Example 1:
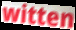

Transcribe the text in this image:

witten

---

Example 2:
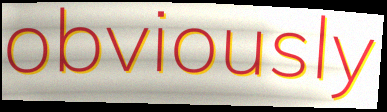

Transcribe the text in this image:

obviously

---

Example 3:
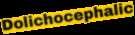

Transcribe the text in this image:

Dolichocephalic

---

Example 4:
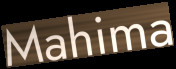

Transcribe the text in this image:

Mahima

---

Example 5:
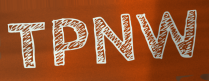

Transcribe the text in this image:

TPNW